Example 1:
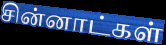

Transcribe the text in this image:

சின்னாட்கள்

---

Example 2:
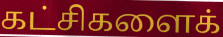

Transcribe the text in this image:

கட்சிகளைக்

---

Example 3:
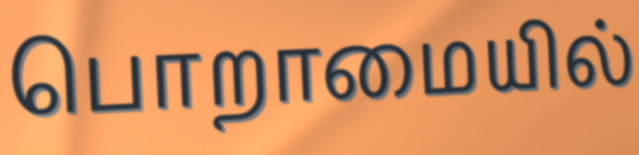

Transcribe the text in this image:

பொறாமையில்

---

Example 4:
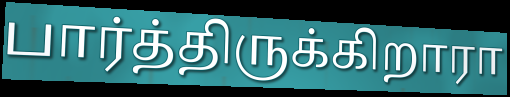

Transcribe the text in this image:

பார்த்திருக்கிறாரா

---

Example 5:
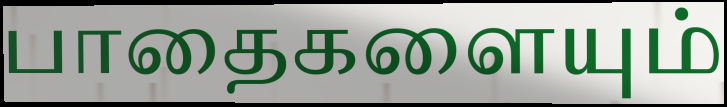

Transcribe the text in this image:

பாதைகளையும்